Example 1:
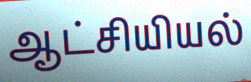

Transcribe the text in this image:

ஆட்சியியல்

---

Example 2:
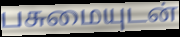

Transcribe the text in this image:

பசுமையுடன்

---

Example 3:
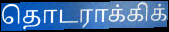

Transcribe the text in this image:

தொடராக்கிக்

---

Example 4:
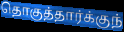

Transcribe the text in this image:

தொகுத்தார்க்குந்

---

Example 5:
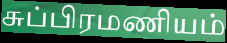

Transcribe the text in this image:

சுப்பிரமணியம்